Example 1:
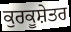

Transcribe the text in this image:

ਕੁਰਕੂਸ਼ੇਤਰ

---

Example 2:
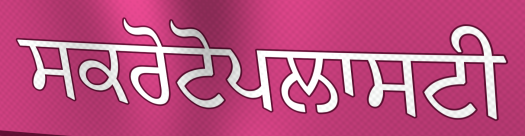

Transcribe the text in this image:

ਸਕਰੋਟੋਪਲਾਸਟੀ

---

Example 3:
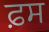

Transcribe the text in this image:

ਫ਼ਸ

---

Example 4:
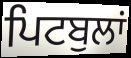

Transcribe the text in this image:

ਪਿਟਬੁਲਾਂ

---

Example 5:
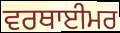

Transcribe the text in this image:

ਵਰਥਾਈਮਰ